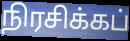
நிரசிக்கப்